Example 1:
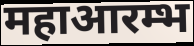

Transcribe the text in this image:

महाआरम्भ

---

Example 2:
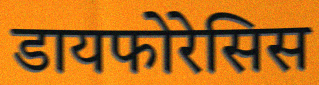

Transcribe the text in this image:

डायफोरेसिस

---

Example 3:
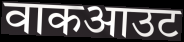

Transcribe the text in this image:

वाकआउट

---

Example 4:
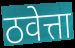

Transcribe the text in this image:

ठवेत्ता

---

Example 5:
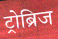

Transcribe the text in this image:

ट्रोब्रिज